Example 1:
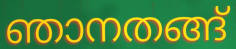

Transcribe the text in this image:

ഞാനതങ്ങ്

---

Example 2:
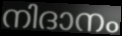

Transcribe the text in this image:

നിദാനം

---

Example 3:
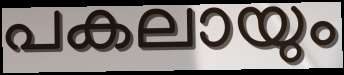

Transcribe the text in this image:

പകലായും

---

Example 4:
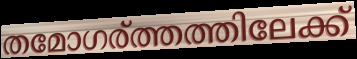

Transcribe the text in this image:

തമോഗര്ത്തത്തിലേക്ക്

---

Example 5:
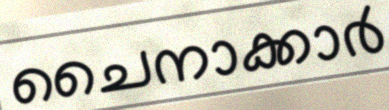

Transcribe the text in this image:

ചൈനാക്കാർ